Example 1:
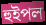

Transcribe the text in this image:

হুইপল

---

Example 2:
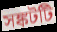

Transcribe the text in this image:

সঙ্কটটি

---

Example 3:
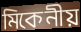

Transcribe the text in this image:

মিকেনীয়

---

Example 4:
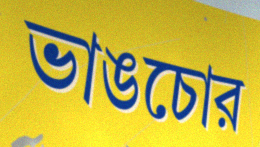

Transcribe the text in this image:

ভাঙচোর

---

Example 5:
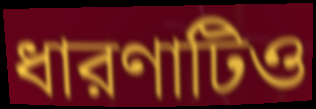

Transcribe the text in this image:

ধারণাটিও